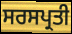
ਸਰਸਪ੍ਰਤੀ